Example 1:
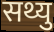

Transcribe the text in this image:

सथ्यु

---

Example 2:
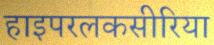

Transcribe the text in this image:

हाइपरलकसीरिया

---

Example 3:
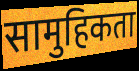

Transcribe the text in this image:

सामुहिकता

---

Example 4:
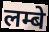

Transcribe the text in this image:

लम्बे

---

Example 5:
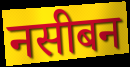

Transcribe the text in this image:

नसीबन